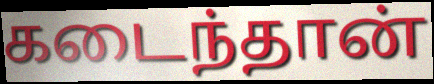
கடைந்தான்